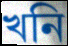
খনি